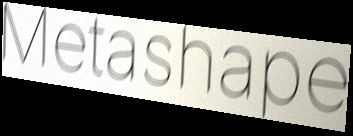
Metashape